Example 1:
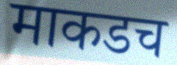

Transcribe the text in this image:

माकडच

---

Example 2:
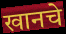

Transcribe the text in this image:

खानचे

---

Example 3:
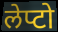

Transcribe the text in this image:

लेप्टो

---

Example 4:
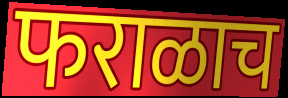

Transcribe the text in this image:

फराळाच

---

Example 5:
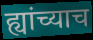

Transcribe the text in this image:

ह्यांच्याच